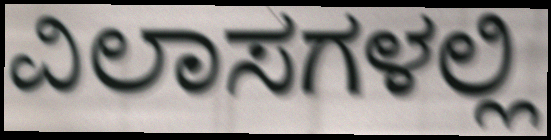
ವಿಲಾಸಗಳಲ್ಲಿ